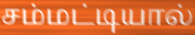
சம்மட்டியால்